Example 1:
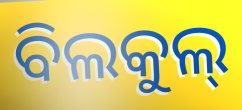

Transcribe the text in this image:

ବିଲକୁଲ୍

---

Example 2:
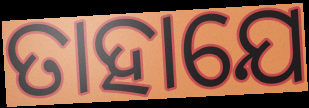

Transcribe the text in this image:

ତାହାଯେ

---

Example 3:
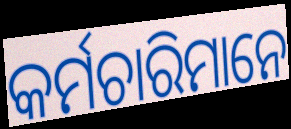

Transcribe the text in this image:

କର୍ମଚାରିମାନେ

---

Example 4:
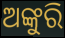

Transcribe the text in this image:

ଅଙ୍କୁରି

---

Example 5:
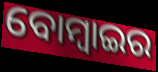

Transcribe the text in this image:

ବୋମ୍ବାଇର